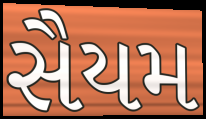
સૈયમ